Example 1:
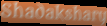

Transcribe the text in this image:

Shadakshary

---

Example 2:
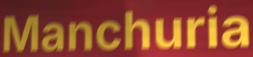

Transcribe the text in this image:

Manchuria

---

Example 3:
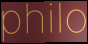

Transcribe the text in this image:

philo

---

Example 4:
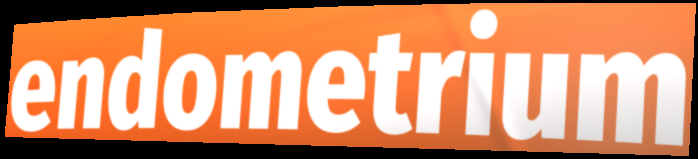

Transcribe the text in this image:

endometrium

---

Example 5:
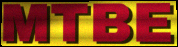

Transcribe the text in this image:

MTBE